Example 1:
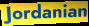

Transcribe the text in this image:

Jordanian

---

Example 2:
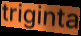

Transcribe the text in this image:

triginta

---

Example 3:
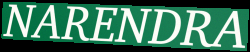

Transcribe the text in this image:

NARENDRA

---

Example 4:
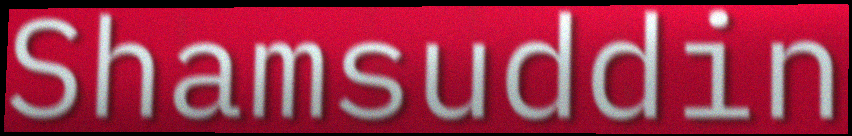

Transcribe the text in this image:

Shamsuddin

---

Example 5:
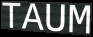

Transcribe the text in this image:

TAUM